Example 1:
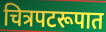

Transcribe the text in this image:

चित्रपटरूपात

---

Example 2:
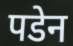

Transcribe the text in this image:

पडेन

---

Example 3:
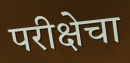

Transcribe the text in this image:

परीक्षेचा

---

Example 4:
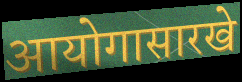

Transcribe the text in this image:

आयोगासारखे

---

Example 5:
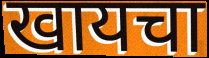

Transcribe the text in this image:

खायचा